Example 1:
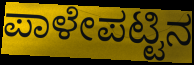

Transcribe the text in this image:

ಪಾಳೇಪಟ್ಟಿನ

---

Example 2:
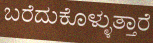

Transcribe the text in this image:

ಬರೆದುಕೊಳ್ಳುತ್ತಾರೆ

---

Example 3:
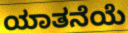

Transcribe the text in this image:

ಯಾತನೆಯೆ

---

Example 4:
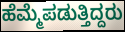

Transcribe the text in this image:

ಹೆಮ್ಮೆಪಡುತ್ತಿದ್ದರು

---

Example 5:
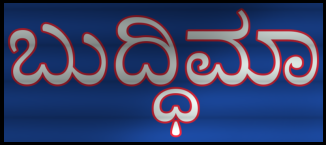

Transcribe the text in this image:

ಬುದ್ಧಿಮಾ